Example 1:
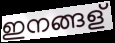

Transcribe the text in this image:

ഇനങ്ങള്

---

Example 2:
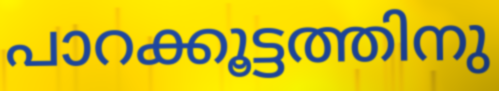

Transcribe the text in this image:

പാറക്കൂട്ടത്തിനു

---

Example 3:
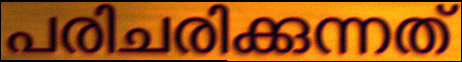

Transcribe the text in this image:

പരിചരിക്കുന്നത്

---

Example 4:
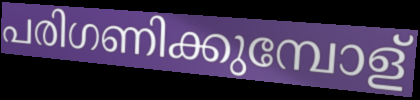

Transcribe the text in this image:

പരിഗണിക്കുമ്പോള്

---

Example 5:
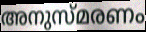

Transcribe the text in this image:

അനുസ്മരണം